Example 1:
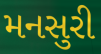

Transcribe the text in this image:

મનસુરી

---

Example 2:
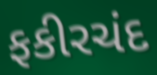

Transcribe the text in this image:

ફકીરચંદ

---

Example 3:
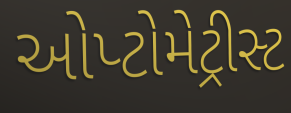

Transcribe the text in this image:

ઓપ્ટોમેટ્રીસ્ટ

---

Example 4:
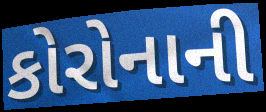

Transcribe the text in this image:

કોરોનાની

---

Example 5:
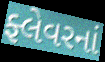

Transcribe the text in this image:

ફ્લેવરનાં